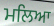
ਮਲਿਆ